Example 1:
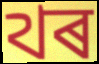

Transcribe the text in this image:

থৰ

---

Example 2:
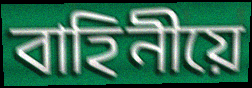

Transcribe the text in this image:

বাহিনীয়ে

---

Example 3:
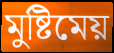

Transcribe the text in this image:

মুষ্টিমেয়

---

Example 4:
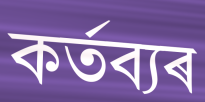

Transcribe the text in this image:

কৰ্তব্যৰ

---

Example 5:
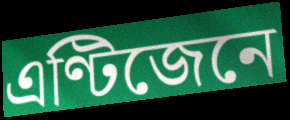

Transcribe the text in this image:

এণ্টিজেনে